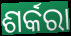
ଶର୍କରା